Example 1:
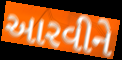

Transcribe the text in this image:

આરવીને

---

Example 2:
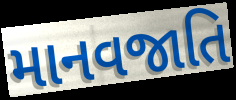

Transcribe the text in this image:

માનવજાતિ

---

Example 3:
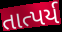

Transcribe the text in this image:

તાત્પર્ય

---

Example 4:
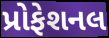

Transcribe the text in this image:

પ્રોફેશનલ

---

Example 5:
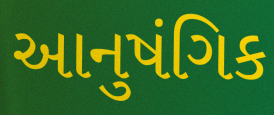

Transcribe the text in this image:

આનુષંગિક